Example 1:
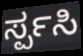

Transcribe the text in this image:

ರ್ಸ್ಪಸಿ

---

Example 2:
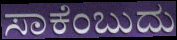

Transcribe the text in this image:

ಸಾಕೆಂಬುದು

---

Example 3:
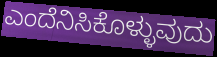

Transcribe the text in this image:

ಎಂದೆನಿಸಿಕೊಳ್ಳುವುದು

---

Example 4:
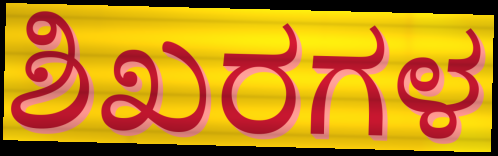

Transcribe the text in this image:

ಶಿಖರಗಳ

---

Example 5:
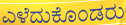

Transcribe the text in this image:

ಎಳೆದುಕೊಂಡರು